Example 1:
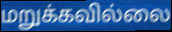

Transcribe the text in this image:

மறுக்கவில்லை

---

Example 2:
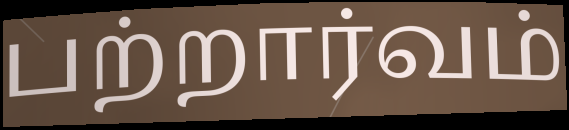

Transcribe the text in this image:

பற்றார்வம்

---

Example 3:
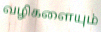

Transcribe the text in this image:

வழிகளையும்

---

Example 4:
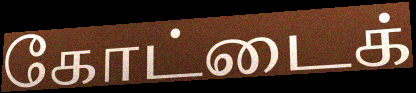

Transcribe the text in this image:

கோட்டைக்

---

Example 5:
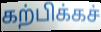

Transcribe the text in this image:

கற்பிக்கச்